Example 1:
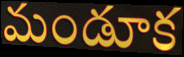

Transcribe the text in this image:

మండూక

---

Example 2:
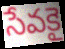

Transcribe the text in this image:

సేవకై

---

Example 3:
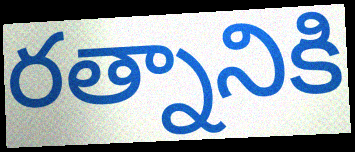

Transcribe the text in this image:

రత్నానికి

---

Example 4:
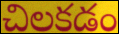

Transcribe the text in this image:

చిలకడం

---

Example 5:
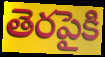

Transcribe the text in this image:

తెరపైకి